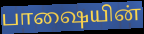
பாஷையின்